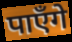
पाएँगे